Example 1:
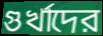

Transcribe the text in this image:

গুর্খাদের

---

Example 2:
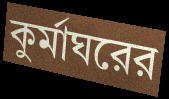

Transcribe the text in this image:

কুর্মাঘরের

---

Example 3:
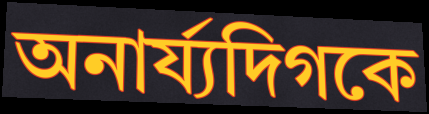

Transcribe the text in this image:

অনার্য্যদিগকে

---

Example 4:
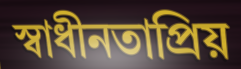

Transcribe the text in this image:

স্বাধীনতাপ্রিয়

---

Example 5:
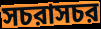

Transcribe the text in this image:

সচরাসচর